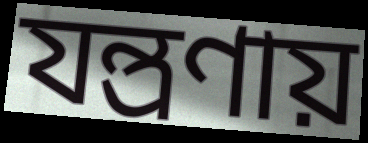
যন্ত্রণায়